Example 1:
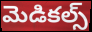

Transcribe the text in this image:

మెడికల్స్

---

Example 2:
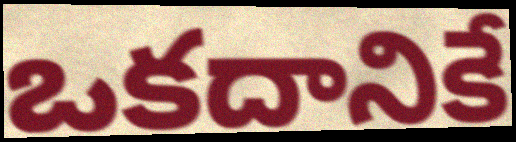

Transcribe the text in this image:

ఒకదానికే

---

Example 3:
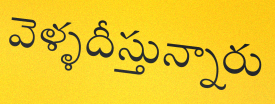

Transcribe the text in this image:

వెళ్ళదీస్తున్నారు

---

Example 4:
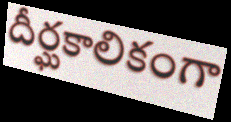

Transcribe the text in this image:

దీర్ఘకాలికంగా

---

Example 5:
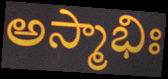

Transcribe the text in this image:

అస్మాభిః